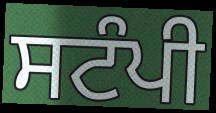
ਸਟੰਪੀ